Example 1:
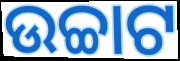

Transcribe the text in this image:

ଉଚ୍ଚାଟ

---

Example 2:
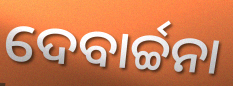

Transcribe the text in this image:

ଦେବାର୍ଚ୍ଚନା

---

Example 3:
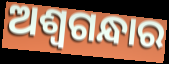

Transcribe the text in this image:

ଅଶ୍ୱଗନ୍ଧାର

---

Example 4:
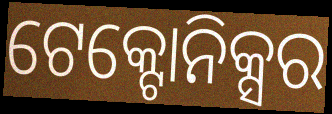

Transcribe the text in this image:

ଟେକ୍ଟୋନିକ୍ସର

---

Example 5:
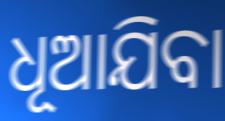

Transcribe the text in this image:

ଧୂଆଯିବା